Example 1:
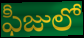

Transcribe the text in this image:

ఫీజులో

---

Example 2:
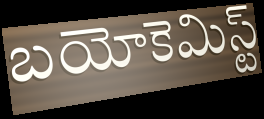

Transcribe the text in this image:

బయోకెమిస్ట్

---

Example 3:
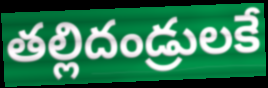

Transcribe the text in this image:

తల్లిదండ్రులకే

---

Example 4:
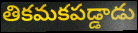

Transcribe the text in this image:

తికమకపడ్డాడు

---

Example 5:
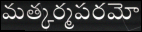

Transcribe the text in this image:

మత్కర్మపరమో